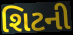
શિટની